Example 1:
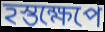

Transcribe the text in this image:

হস্তক্ষেপে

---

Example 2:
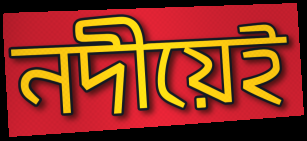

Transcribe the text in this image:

নদীয়েই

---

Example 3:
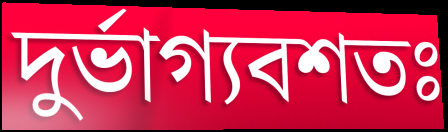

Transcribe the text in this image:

দুৰ্ভাগ্যবশতঃ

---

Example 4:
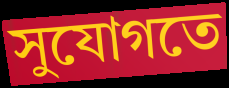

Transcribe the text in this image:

সুযোগতে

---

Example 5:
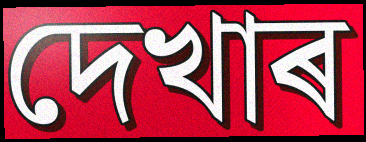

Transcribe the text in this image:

দেখাৰ